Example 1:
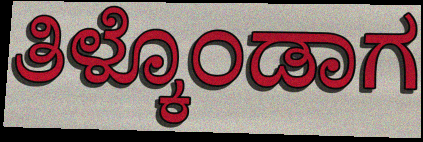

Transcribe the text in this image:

ತಿಳ್ಕೊಂಡಾಗ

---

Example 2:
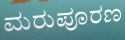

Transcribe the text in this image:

ಮರುಪೂರಣ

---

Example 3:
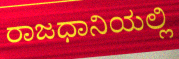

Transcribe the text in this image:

ರಾಜಧಾನಿಯಲ್ಲಿ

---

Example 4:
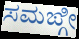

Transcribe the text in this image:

ಸಮಙ್ಗೀ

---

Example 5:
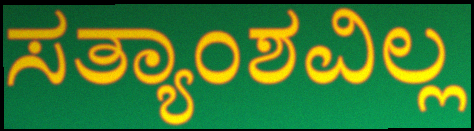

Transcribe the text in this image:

ಸತ್ಯಾಂಶವಿಲ್ಲ